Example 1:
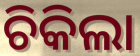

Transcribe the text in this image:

ଚିକିଲା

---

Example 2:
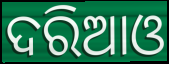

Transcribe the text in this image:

ଦରିଆଓ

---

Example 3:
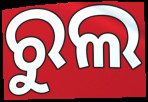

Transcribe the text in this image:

ରୁଲ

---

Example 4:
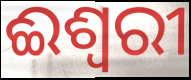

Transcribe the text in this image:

ଈଶ୍ଵରୀ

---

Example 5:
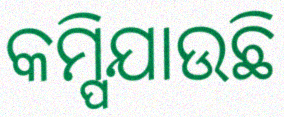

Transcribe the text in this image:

କମ୍ପିଯାଉଛି